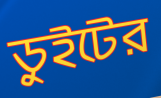
ডুইটের